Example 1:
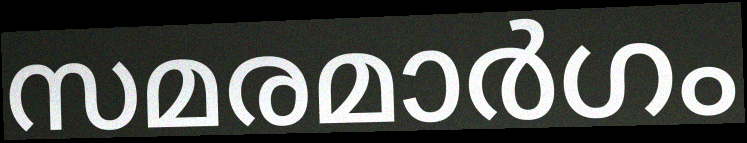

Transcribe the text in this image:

സമരമാർഗം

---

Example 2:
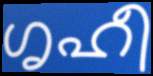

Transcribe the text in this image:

ഗൃഹീ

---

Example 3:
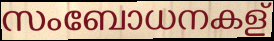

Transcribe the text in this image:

സംബോധനകള്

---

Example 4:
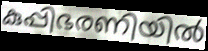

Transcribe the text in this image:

കുപ്പിഭരണിയിൽ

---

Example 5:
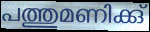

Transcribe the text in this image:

പത്തുമണിക്കു്